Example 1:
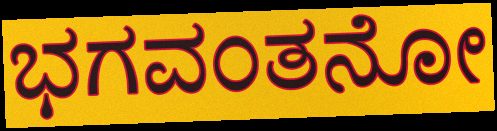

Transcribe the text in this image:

ಭಗವಂತನೋ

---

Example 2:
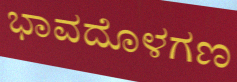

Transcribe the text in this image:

ಭಾವದೊಳಗಣ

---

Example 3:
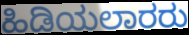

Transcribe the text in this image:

ಹಿಡಿಯಲಾರರು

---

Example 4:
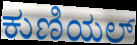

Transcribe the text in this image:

ಕುಣಿಯಲ್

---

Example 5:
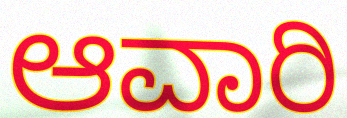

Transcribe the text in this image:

ಆವಾರಿ